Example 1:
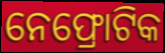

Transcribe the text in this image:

ନେଫ୍ରୋଟିକ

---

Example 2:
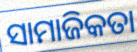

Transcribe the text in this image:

ସାମାଜିକତା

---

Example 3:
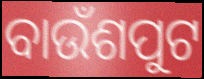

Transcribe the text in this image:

ବାଉଁଶପୁଟ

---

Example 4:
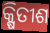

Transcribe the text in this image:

କ୍ଷିତୀଶ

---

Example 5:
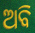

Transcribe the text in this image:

ଅବି